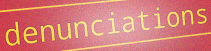
denunciations